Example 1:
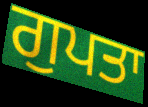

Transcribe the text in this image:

ਗੁਪਤਾ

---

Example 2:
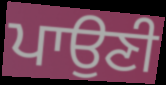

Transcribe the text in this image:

ਪਾਉਣੀ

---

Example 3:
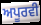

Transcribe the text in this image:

ਅਪੂਰਵੀ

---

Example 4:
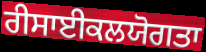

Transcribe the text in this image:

ਰੀਸਾਈਕਲਯੋਗਤਾ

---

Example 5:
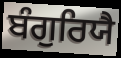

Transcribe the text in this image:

ਬੰਗੁਰਿਯੈ